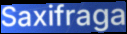
Saxifraga